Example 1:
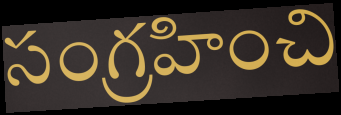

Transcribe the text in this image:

సంగ్రహించి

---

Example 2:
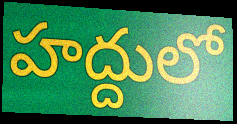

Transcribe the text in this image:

హద్దులో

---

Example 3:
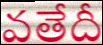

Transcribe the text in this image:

వతేదీ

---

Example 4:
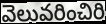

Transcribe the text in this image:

వెలువరించిరి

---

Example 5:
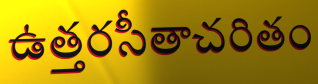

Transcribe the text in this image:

ఉత్తరసీతాచరితం